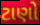
ટાણો